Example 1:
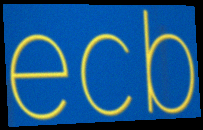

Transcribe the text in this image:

ecb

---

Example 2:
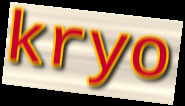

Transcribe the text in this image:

kryo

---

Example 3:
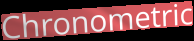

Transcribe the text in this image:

Chronometric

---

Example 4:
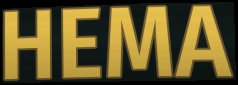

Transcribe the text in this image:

HEMA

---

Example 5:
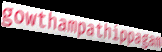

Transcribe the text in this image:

gowthampathippagam